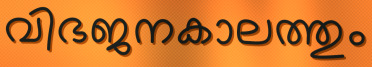
വിഭജനകാലത്തും